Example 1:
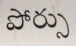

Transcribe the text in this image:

పోర్సు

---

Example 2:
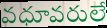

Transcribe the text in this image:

వధూవరులే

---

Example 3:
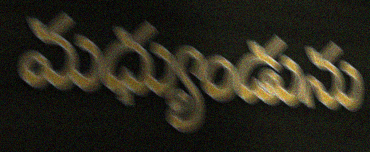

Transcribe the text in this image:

మధ్యుండును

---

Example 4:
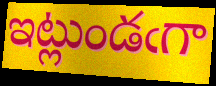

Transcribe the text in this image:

ఇట్లుండఁగా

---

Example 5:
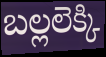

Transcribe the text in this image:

బల్లలెక్కి